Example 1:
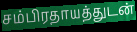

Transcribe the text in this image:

சம்பிரதாயத்துடன்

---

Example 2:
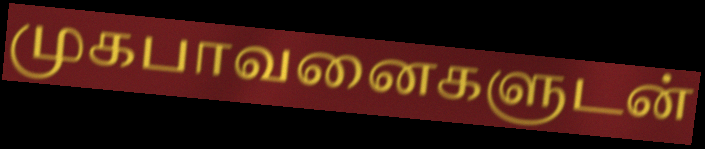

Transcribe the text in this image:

முகபாவனைகளுடன்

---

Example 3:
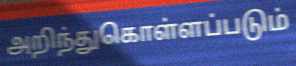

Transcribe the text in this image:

அறிந்துகொள்ளப்படும்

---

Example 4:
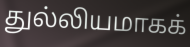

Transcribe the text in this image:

துல்லியமாகக்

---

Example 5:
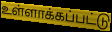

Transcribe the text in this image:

உள்ளாக்கப்பட்டு